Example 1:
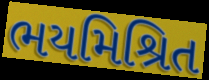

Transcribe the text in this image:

ભયમિશ્રિત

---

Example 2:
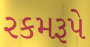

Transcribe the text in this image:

રકમરૂપે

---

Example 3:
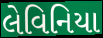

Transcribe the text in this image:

લેવિનિયા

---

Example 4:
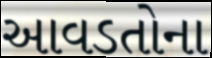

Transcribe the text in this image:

આવડતોના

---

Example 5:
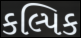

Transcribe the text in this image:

કલ્પિક